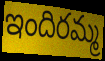
ఇందిరమ్మ